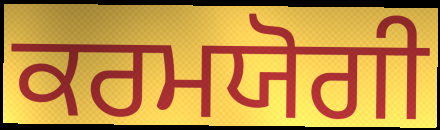
ਕਰਮਯੋਗੀ